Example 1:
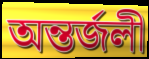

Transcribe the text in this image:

অন্তর্জলী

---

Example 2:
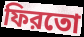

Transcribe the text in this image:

ফিরতো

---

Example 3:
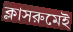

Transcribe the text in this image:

ক্লাসরুমেই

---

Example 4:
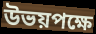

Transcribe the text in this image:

উভয়পক্ষে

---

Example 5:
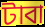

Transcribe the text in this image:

টাবা